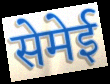
सेमेई